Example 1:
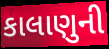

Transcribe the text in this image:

કાલાણુની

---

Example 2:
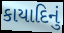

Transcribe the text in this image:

કાયાદિનું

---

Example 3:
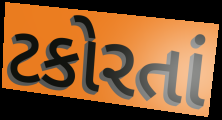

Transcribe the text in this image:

ટકોરતાં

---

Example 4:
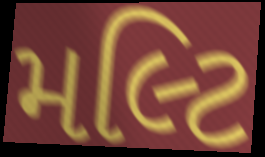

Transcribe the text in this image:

મલ્ટિ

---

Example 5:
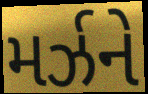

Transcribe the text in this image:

મર્ઝને